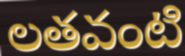
లతవంటి